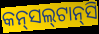
କନ୍‌ସଲ୍‌ଟାନ୍‌ସି